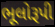
ભૂલોરૂપી